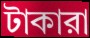
টাকারা